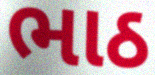
ભાઠ